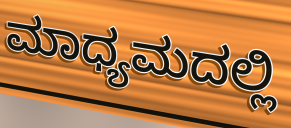
ಮಾಧ್ಯಮದಲ್ಲಿ